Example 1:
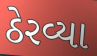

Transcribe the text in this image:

ઠેરવ્યા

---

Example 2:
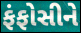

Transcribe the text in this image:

ફંફોસીને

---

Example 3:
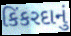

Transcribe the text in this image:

કિંકરદાનું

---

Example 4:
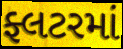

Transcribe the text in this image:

ફ્લટરમાં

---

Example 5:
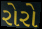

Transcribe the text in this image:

રોરો